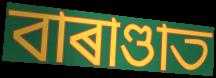
বাৰাণ্ডাত